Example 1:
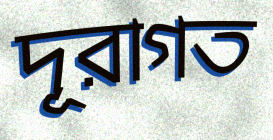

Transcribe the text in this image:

দূরাগত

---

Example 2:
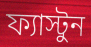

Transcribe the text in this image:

ফ্যাস্টুন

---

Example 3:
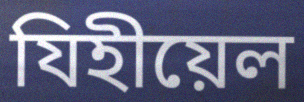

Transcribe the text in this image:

যিহীয়েল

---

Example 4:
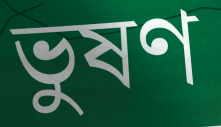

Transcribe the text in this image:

ভুষণ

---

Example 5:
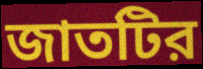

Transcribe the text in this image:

জাতটির